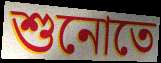
শুনোতে